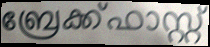
ബ്രേക്ക്ഫാസ്റ്റ്